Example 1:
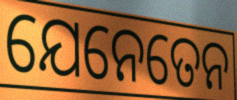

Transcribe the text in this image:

ଯେନେତେନ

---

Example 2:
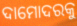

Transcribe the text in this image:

ଦାମୋଦରକୁ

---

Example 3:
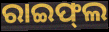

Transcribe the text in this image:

ରାଇଫ୍‌ଲ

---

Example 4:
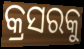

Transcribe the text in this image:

କ୍ରସରକୁ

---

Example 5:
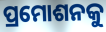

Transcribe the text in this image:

ପ୍ରମୋଶନକୁ